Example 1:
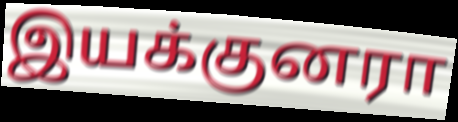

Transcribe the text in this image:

இயக்குனரா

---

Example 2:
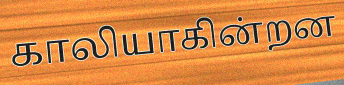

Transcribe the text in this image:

காலியாகின்றன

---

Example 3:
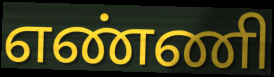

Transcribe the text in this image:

எண்ணி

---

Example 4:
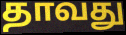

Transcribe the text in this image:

தாவது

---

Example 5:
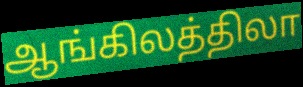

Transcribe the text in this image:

ஆங்கிலத்திலா